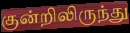
குன்றிலிருந்து